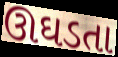
ઊઘડતા